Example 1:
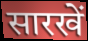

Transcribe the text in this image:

सारखें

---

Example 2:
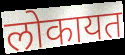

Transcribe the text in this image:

लोकायत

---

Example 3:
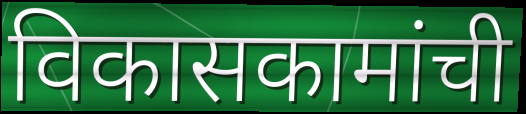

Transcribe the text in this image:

विकासकामांची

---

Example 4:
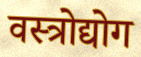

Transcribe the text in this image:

वस्त्रोद्योग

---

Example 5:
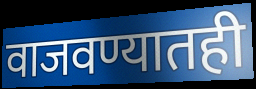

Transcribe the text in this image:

वाजवण्यातही